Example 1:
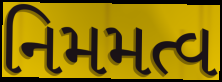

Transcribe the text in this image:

નિમમત્વ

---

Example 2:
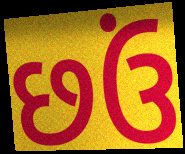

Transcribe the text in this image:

છઉં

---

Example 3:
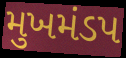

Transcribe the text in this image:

મુખમંડપ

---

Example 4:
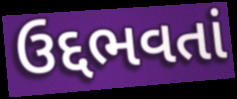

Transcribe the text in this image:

ઉદ્દભવતાં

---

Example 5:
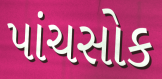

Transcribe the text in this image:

પાંચસોક